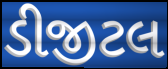
ડીજીટલ